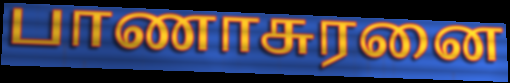
பாணாசுரனை